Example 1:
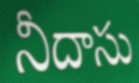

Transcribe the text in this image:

నీదాసు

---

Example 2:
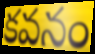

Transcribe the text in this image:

కవనం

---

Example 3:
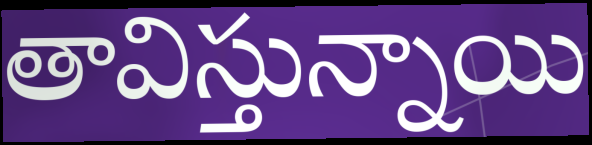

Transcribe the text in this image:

తావిస్తున్నాయి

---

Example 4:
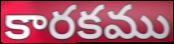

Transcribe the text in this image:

కారకము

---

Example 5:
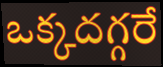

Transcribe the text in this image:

ఒక్కదగ్గరే